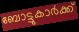
ബോട്ടുകാർക്ക്